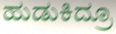
ಹುಡುಕಿದ್ರೂ